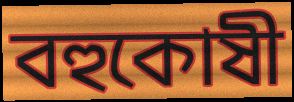
বহুকোষী